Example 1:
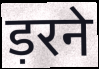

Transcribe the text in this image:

ड़रने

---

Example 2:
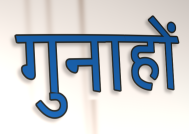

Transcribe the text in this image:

गुनाहों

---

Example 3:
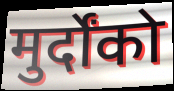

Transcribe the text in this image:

मुर्दोंको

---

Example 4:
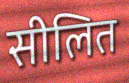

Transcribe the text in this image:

सीलित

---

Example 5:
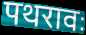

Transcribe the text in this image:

पथरावः